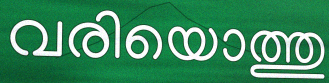
വരിയൊത്തു